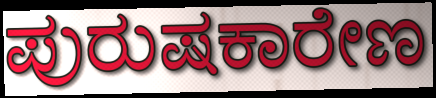
ಪುರುಷಕಾರೇಣ